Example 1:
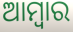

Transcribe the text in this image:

ଆମ୍ବାର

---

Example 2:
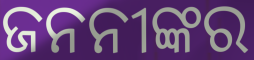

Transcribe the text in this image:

ଜନନୀଙ୍କର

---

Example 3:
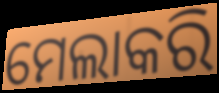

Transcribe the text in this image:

ମେଲାକରି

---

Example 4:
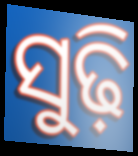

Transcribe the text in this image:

ସୁଢ଼ି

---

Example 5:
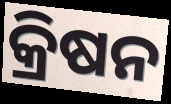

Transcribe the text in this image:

କ୍ରିଷନ